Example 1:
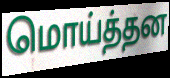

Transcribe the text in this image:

மொய்த்தன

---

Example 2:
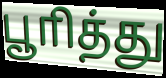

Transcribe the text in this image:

பூரித்து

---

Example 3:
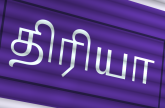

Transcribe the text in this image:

திரியா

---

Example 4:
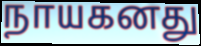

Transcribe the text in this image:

நாயகனது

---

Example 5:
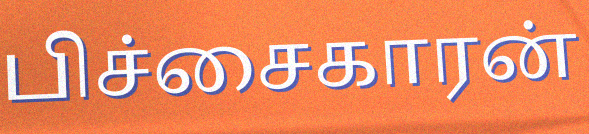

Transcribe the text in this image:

பிச்சைகாரன்